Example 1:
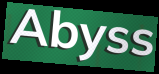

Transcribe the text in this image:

Abyss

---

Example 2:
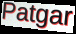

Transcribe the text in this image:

Patgar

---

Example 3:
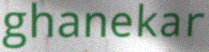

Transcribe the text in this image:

ghanekar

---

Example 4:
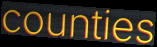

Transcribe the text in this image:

counties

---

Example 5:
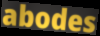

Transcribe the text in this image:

abodes